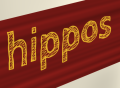
hippos